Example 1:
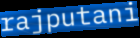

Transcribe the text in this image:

rajputani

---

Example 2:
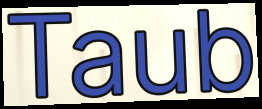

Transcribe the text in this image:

Taub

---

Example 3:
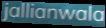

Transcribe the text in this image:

jallianwala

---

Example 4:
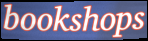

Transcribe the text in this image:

bookshops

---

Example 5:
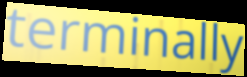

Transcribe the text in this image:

terminally